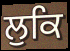
ਲੁਕਿ